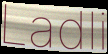
Ladli